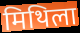
मिथिला